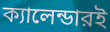
ক্যালেন্ডারই